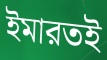
ইমারতই